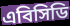
এবিসিডি